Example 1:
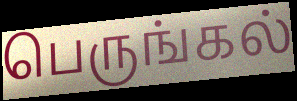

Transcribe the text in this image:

பெருங்கல்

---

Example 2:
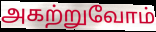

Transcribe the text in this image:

அகற்றுவோம்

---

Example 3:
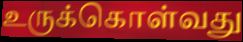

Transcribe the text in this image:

உருக்கொள்வது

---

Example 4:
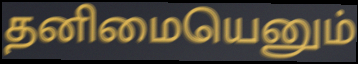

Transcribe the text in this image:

தனிமையெனும்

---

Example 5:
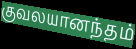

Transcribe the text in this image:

குவலயானந்தம்